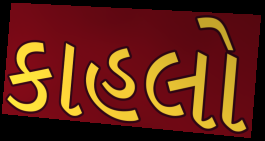
કાહલો